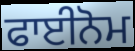
ਫਾਈਨੋਮ